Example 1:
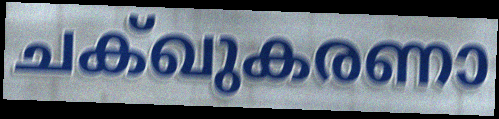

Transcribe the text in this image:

ചക്ഖുകരണാ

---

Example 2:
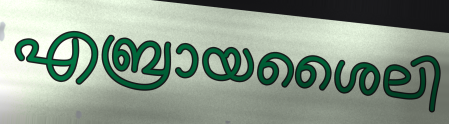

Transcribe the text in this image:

എബ്രായശൈലി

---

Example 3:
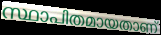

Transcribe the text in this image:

സ്ഥാപിതമായതാണ്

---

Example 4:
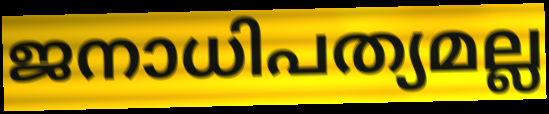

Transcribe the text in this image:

ജനാധിപത്യമല്ല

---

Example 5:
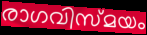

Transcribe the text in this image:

രാഗവിസ്മയം